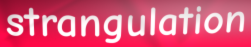
strangulation